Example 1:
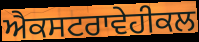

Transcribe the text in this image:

ਐਕਸਟਰਾਵੇਹੀਕਲ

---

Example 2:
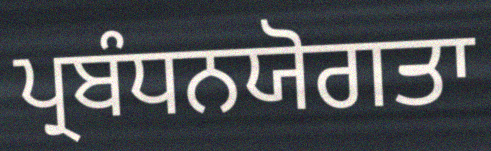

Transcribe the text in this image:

ਪ੍ਰਬੰਧਨਯੋਗਤਾ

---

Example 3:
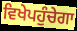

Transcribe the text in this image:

ਵਿਖੇਪਹੁੰਚੇਗਾ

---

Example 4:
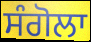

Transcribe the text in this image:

ਸੰਗੋਲਾ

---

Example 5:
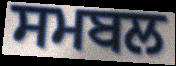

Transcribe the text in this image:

ਸਮਬਲ